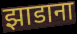
झाडाना